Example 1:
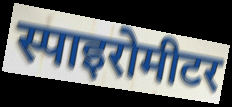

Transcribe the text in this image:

स्पाइरोमीटर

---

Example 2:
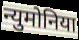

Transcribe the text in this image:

न्युमोनिया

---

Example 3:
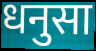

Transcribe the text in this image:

धनुसा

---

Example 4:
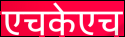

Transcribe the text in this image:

एचकेएच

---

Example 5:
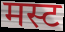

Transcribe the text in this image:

मस्‍ट